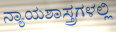
ನ್ಯಾಯಶಾಸ್ತ್ರಗಳಲ್ಲಿ